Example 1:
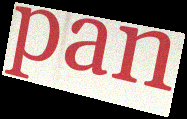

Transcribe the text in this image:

pan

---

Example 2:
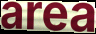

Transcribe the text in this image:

area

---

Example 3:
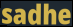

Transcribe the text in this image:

sadhe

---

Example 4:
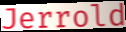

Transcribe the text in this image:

Jerrold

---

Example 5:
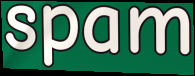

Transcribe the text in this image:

spam